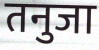
तनुजा